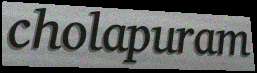
cholapuram